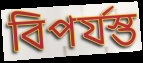
বিপর্যস্ত